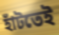
হাঁটতেই